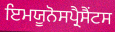
ਇਮਯੂਨੋਸਪ੍ਰੈਸੈਂਟਸ